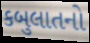
કબુલાતનો